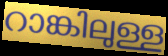
റാങ്കിലുള്ള